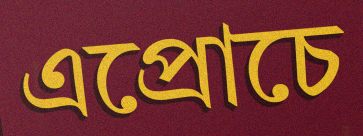
এপ্রোচে